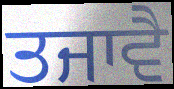
ਤਜਾਵੈ